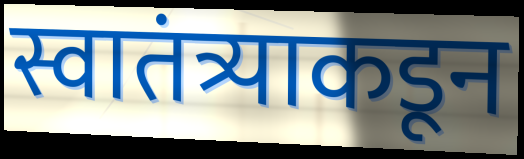
स्वातंत्र्याकडून